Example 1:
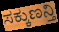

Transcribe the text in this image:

ಸಕ್ಕುಣನ್ತಿ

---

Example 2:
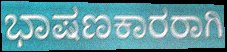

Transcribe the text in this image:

ಭಾಷಣಕಾರರಾಗಿ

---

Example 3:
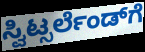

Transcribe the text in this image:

ಸ್ವಿಟ್ಸರ್ಲೆಂಡ್‌ಗೆ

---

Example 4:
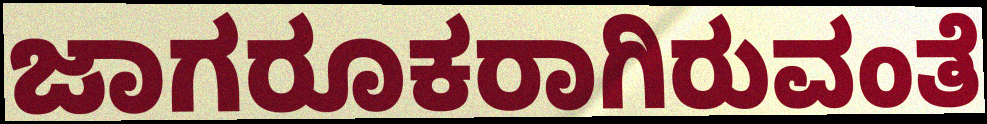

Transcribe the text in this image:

ಜಾಗರೂಕರಾಗಿರುವಂತೆ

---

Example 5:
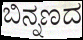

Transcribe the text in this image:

ಬಿನ್ನಣದ